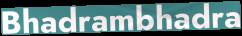
Bhadrambhadra